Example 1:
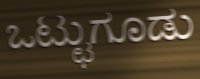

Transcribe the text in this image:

ಒಟ್ಟುಗೂಡು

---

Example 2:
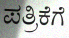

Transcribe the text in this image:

ಪತ್ರಿಕೆಗೆ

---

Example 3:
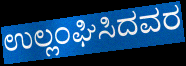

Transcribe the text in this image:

ಉಲ್ಲಂಘಿಸಿದವರ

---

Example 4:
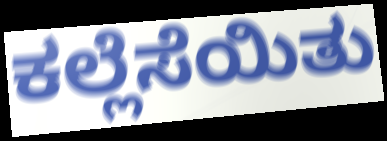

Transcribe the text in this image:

ಕಲ್ಲೆಸೆಯಿತು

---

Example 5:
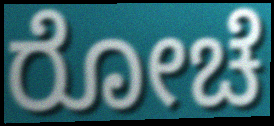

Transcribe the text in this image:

ರೋಚೆ